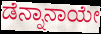
ಡೆನ್ನಾನಾಯೇ